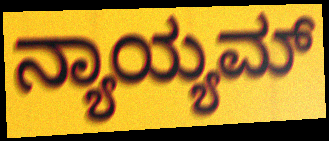
ನ್ಯಾಯ್ಯಮ್